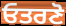
ਓਤਰਣੋ